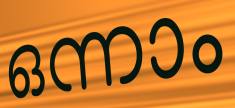
ഒന്നാം